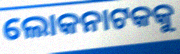
ଲୋକନାଟକକୁ